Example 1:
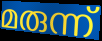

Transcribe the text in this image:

മരുന്ന്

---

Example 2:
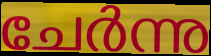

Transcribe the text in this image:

ചേർന്നു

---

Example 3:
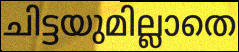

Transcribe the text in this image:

ചിട്ടയുമില്ലാതെ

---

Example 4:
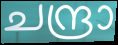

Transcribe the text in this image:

ചന്ദ്രാ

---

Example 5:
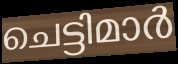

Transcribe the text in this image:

ചെട്ടിമാർ